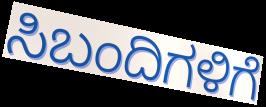
ಸಿಬಂದಿಗಳಿಗೆ